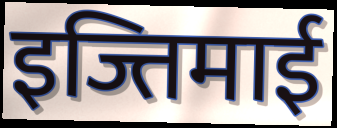
इज्तिमाई